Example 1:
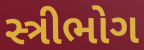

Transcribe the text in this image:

સ્ત્રીભોગ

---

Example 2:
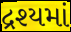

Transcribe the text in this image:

દ્રશ્યમાં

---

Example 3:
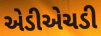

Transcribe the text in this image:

એડીએચડી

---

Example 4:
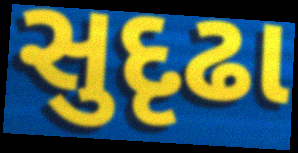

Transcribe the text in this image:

સુદૃઢા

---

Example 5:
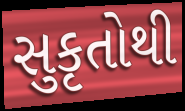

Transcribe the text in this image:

સુકૃતોથી